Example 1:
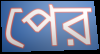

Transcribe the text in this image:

পের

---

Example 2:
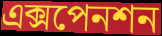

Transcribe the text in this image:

এক্সপেনশন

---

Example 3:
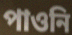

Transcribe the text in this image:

পাওনি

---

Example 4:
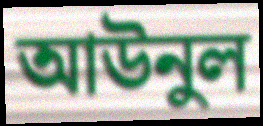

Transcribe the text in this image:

আউনুল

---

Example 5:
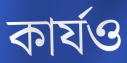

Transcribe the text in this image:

কার্যও